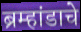
ब्रम्हांडाचे